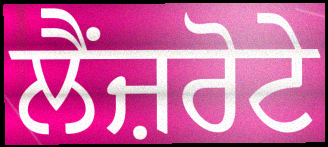
ਲੈਂਜ਼ਰੋਟੇ